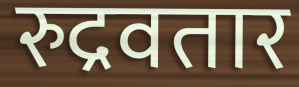
रुद्रवतार